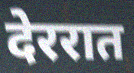
देररात